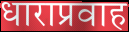
धाराप्रवाह